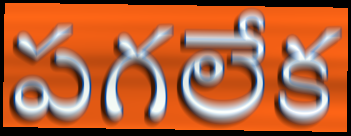
పగలేక